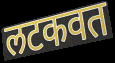
लटकवत